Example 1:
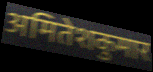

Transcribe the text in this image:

अमितेशकुमार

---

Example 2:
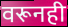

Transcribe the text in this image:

वरूनही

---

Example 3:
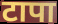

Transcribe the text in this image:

टापा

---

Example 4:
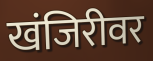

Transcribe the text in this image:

खंजिरीवर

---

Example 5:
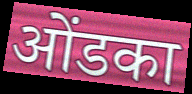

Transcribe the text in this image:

ओंडका